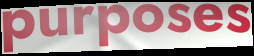
purposes